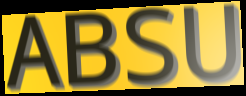
ABSU